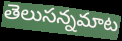
తెలుసన్నమాట